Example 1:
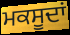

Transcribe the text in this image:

ਮਕਸੂਦਾਂ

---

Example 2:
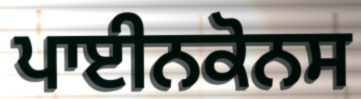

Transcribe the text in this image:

ਪਾਈਨਕੋਨਸ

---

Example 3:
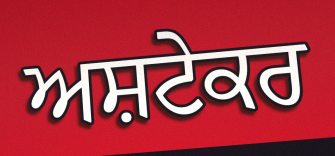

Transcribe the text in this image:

ਅਸ਼ਟੇਕਰ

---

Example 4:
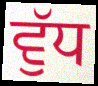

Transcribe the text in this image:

ਵੁੱਧ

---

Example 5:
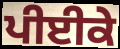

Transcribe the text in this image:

ਪੀਈਕੇ